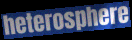
heterosphere